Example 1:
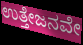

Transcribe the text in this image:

ಉತ್ತೇಜನವೇ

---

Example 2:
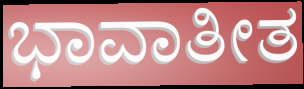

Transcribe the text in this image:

ಭಾವಾತೀತ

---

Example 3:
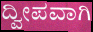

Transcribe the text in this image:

ದ್ವೀಪವಾಗಿ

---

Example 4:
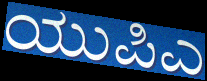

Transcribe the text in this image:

ಯುಪಿಎ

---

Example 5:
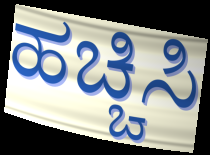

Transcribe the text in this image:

ಹಚ್ಚಿಸಿ